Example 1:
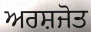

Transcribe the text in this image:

ਅਰਸ਼ਜੋਤ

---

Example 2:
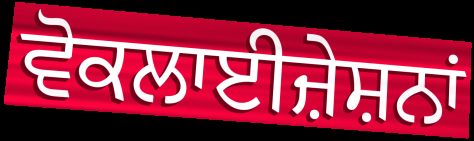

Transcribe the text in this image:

ਵੋਕਲਾਈਜ਼ੇਸ਼ਨਾਂ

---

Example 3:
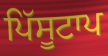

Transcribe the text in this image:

ਪਿੱਸੂਟਾਪ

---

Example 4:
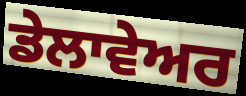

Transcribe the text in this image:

ਡੇਲਾਵੇਅਰ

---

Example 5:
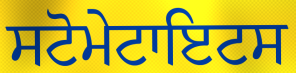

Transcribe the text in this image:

ਸਟੋਮੇਟਾਇਟਸ